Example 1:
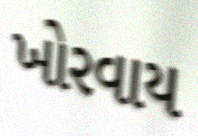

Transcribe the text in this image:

ખોરવાય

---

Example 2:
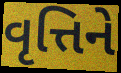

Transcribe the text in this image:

વૃત્તિને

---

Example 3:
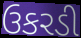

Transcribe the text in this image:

ઉકરડી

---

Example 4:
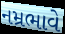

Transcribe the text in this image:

નમ્રભાવે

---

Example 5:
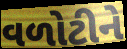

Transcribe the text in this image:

વળોટીને